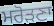
ਮਰੋੜਣਾ